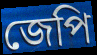
জেপি